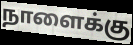
நாளைக்கு